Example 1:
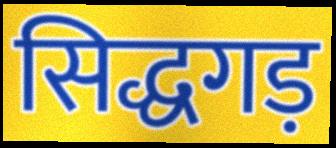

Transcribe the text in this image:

सिद्धगड़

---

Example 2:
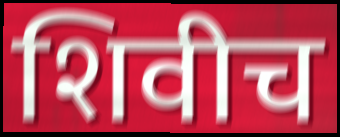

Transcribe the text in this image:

शिवीच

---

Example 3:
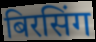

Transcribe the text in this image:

बिरसिंग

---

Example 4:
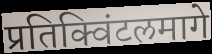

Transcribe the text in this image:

प्रतिक्विंटलमागे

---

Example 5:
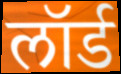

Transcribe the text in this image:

लॉर्ड